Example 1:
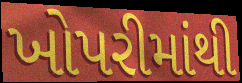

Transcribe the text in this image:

ખોપરીમાંથી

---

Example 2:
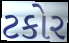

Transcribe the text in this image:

ટકોર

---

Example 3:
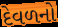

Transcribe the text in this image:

દેવળનો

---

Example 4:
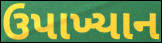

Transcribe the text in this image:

ઉપાખ્યાન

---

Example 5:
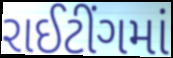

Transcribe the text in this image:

રાઈટીંગમાં